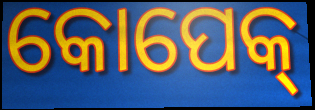
କୋପେକ୍